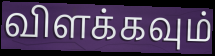
விளக்கவும்